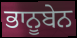
ਭਾਨੂਬੇਨ